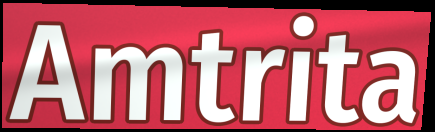
Amtrita